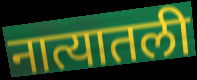
नात्यातली